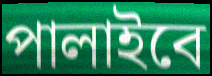
পালাইবে